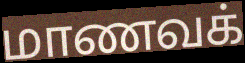
மாணவக்